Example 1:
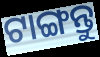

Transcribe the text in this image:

ଟାଙ୍ଗନ୍ତୁ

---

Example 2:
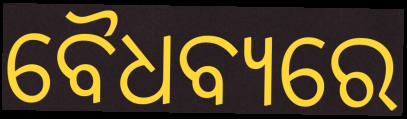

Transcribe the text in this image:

ବୈଧବ୍ୟରେ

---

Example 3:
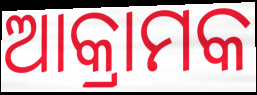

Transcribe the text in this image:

ଆକ୍ରାମକ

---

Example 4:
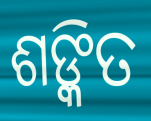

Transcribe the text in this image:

ଶଙ୍କିତ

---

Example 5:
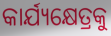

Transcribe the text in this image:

କାର୍ଯ୍ୟକ୍ଷେତ୍ରକୁ